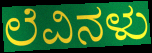
ಲೆವಿನಳು